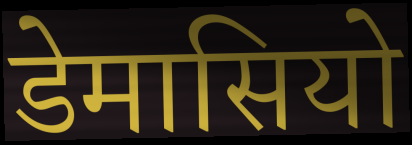
डेमासियो